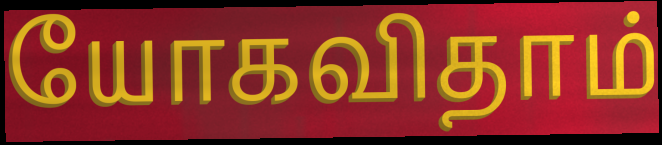
யோகவிதாம்